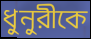
ধুনুরীকে